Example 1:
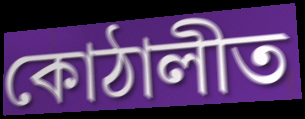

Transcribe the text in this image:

কোঠালীত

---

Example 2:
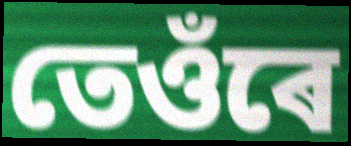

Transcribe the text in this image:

তেওঁৰে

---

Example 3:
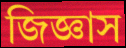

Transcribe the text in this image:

জিজ্ঞাস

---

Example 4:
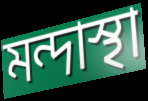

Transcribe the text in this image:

মন্দাস্থা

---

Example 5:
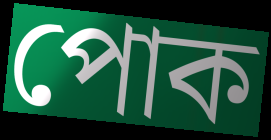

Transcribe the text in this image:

পোক